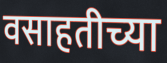
वसाहतीच्या